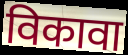
विकावा